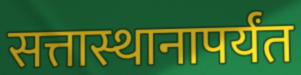
सत्तास्थानापर्यंत